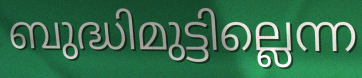
ബുദ്ധിമുട്ടില്ലെന്ന